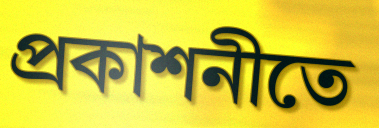
প্রকাশনীতে